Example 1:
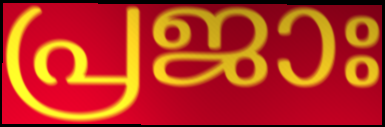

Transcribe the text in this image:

പ്രജാഃ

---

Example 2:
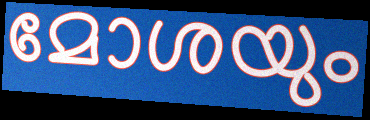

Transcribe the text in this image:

മോശയും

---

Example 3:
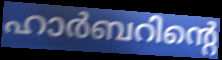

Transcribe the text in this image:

ഹാർബറിന്റെ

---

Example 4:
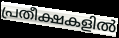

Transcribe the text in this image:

പ്രതീക്ഷകളിൽ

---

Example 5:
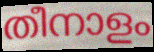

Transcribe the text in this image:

തീനാളം